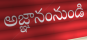
అజ్ఞానంనుండి